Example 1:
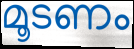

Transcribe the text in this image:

മൂടണം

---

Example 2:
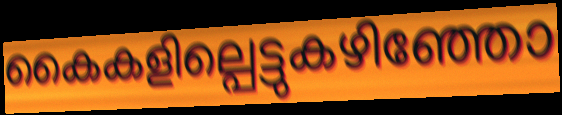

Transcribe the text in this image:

കൈകളില്പെട്ടുകഴിഞ്ഞോ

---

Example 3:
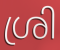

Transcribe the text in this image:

ശ്രി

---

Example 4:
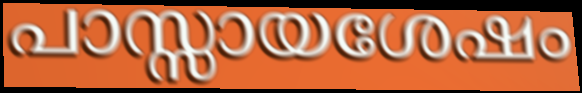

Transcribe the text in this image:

പാസ്സായശേഷം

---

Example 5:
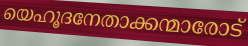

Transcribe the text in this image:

യെഹൂദനേതാക്കന്മാരോട്